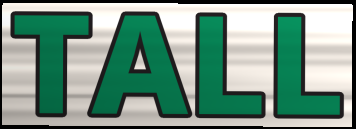
TALL